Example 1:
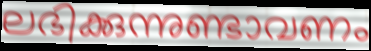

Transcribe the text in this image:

ലഭിക്കുന്നുണ്ടാവണം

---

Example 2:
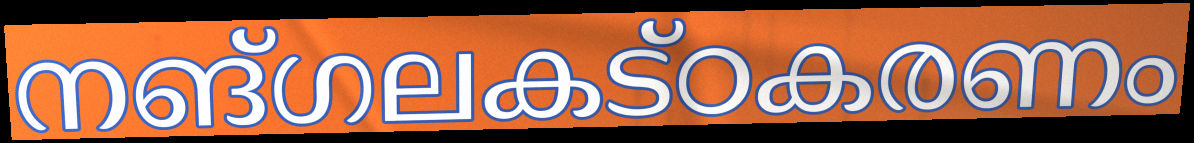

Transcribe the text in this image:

നങ്ഗലകട്ഠകരണം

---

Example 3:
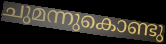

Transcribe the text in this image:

ചുമന്നുകൊണ്ടു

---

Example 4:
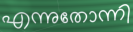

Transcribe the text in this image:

എന്നുതോന്നി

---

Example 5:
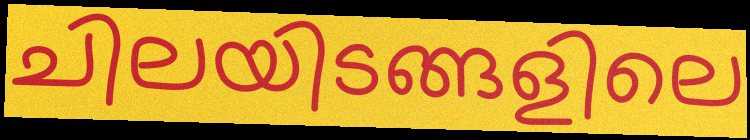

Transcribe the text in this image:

ചിലയിടങ്ങളിലെ